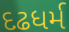
દઢધર્મ